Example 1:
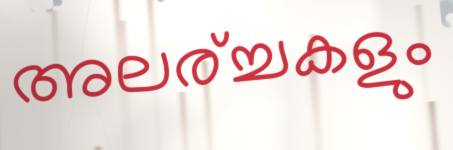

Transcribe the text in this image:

അലര്ച്ചകളും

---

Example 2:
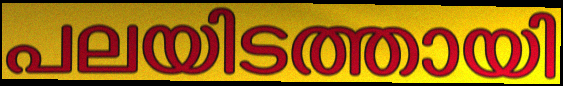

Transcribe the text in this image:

പലയിടത്തായി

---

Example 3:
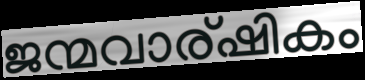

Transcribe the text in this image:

ജന്മവാര്ഷികം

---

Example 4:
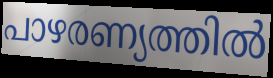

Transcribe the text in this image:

പാഴരണ്യത്തിൽ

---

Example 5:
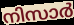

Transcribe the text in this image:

നിസാർ